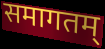
समागतम्